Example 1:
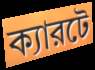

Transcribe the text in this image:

ক্যারটে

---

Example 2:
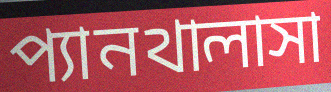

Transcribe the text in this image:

প্যানথালাসা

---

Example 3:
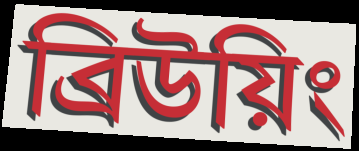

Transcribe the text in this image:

ব্রিউয়িং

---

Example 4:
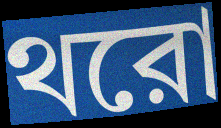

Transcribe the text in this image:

থরো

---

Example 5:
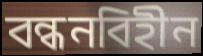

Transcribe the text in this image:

বন্ধনবিহীন